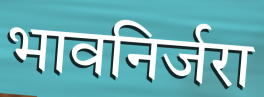
भावनिर्जरा